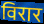
विरार